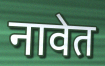
नावेत